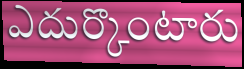
ఎదుర్కొంటారు